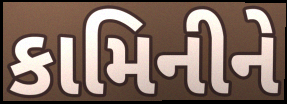
કામિનીને